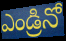
ఎండ్రినో